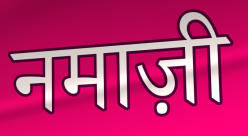
नमाज़ी